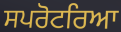
ਸਪਰੋਟਰਿਆ